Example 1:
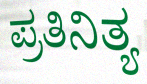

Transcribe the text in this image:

ಪ್ರತಿನಿತ್ಯ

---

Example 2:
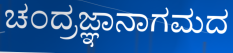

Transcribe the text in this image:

ಚಂದ್ರಜ್ಞಾನಾಗಮದ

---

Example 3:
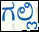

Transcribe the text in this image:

ಗಲ್ಲಿ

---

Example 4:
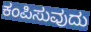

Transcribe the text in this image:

ಕಂಪಿಸುವುದು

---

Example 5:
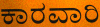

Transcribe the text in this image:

ಕಾರವಾರಿ